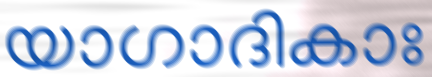
യാഗാദികാഃ